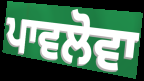
ਪਾਵਲੋਵਾ